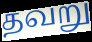
தவறு